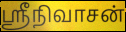
ஸ்ரீநிவாசன்